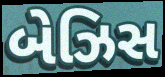
બેઝિસ